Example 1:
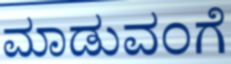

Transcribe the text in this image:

ಮಾಡುವಂಗೆ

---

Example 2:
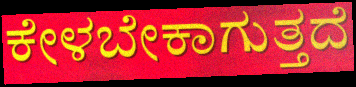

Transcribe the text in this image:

ಕೇಳಬೇಕಾಗುತ್ತದೆ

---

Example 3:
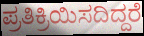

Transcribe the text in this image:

ಪ್ರತಿಕ್ರಿಯಿಸದಿದ್ದರೆ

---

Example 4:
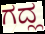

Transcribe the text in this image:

ಗದ್ಲ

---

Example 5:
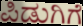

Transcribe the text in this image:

ಪಿಡುಗಿಗೆ